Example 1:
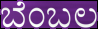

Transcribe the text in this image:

ಬೆಂಬಲ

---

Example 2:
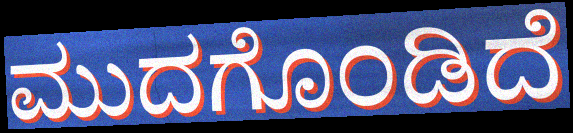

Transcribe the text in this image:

ಮುದಗೊಂಡಿದೆ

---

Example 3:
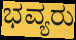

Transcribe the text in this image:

ಭವ್ಯರು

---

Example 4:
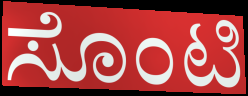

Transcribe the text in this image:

ಸೊಂಟಿ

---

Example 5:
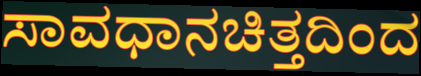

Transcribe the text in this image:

ಸಾವಧಾನಚಿತ್ತದಿಂದ